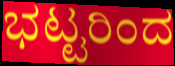
ಭಟ್ಟರಿಂದ